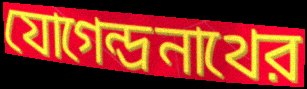
যোগেন্দ্রনাথের